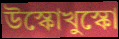
উস্কোখুস্কো